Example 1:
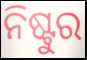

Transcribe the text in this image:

ନିଷ୍ଟୁର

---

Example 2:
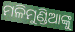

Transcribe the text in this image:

ମଳିମୁଣ୍ଡିଆଙ୍କୁ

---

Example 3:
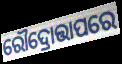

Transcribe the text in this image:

ରୌଦ୍ରୋତ୍ତାପରେ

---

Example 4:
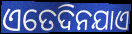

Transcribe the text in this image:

ଏତେଦିନଯାଏ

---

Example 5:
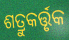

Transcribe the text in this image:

ଶତ୍ରୁକର୍ତ୍ତୃକ